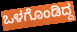
ಒಳಗೊಂಡಿದ್ದ